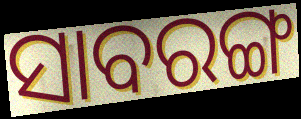
ସାବରଙ୍ଗ